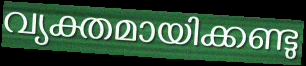
വ്യക്തമായിക്കണ്ടു